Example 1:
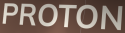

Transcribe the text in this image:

PROTON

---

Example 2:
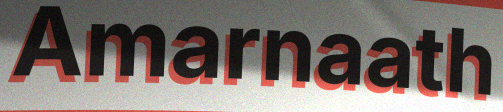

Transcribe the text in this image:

Amarnaath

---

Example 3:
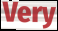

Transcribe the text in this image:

Very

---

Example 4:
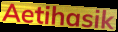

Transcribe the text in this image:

Aetihasik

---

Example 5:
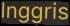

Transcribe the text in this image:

Inggris